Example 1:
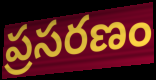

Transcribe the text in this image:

ప్రసరణం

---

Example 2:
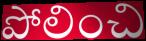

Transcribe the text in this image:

పోలించి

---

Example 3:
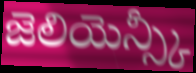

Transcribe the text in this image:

జెలియెన్స్కీ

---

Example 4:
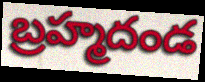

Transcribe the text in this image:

బ్రహ్మదండ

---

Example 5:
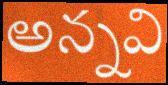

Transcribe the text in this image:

అన్నవి